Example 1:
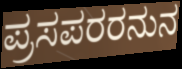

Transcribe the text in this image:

ಪ್ರಸಪರರನುನ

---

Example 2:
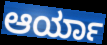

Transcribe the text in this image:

ಆರ್ಯಾ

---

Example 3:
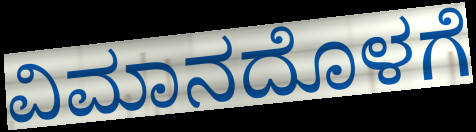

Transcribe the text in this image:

ವಿಮಾನದೊಳಗೆ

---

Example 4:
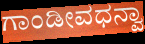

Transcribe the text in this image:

ಗಾಂಡೀವಧನ್ವಾ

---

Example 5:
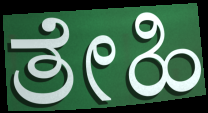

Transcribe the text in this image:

ತೇಹಿ